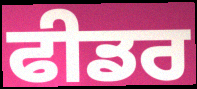
ਫੀਡਰ